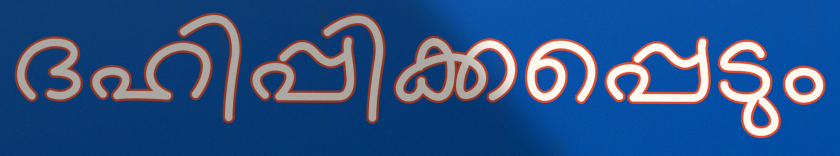
ദഹിപ്പിക്കപ്പെടും